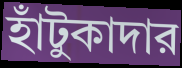
হাঁটুকাদার